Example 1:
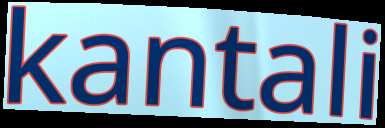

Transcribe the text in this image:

kantali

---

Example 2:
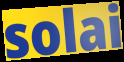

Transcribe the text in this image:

solai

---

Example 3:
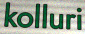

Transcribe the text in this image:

kolluri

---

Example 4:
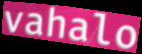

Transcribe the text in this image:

vahalo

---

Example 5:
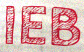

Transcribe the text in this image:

IEB